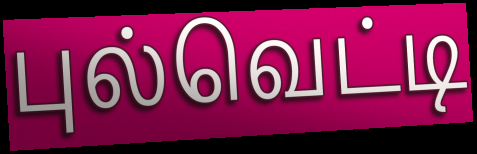
புல்வெட்டி